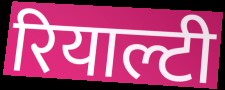
रियाल्टी